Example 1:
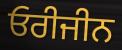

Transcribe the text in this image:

ਓਰੀਜੀਨ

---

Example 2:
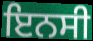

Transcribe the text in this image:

ਇਨਸੀ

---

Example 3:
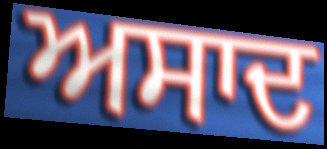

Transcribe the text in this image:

ਅਸਾਦ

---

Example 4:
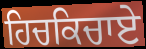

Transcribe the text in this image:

ਹਿਚਕਿਚਾਏ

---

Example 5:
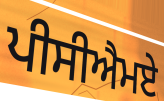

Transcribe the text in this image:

ਪੀਸੀਐਮਏ